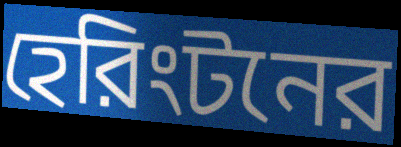
হেরিংটনের